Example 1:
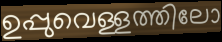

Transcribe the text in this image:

ഉപ്പുവെള്ളത്തിലോ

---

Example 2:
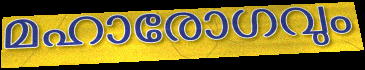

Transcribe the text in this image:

മഹാരോഗവും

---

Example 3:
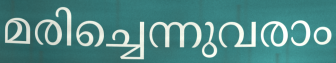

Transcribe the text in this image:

മരിച്ചെന്നുവരാം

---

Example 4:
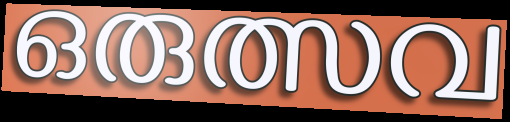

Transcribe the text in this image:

ഒരുത്സവ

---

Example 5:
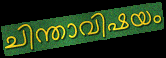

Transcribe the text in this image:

ചിന്താവിഷയം